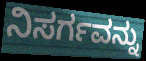
ನಿಸರ್ಗವನ್ನು